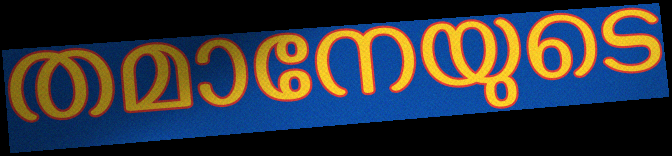
തമാനേയുടെ